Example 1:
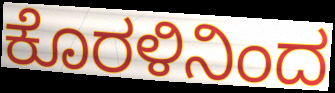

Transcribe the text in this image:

ಕೊರಳಿನಿಂದ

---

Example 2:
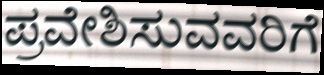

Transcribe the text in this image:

ಪ್ರವೇಶಿಸುವವರಿಗೆ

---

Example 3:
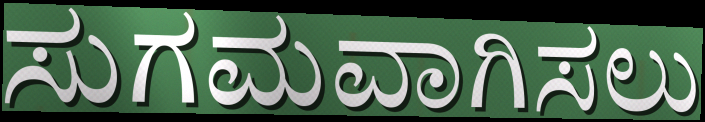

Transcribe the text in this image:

ಸುಗಮವಾಗಿಸಲು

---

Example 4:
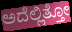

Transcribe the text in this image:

ಅದೆಲ್ಲಿತ್ತೋ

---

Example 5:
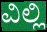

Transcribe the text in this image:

ವಿಲ್ಲಿ